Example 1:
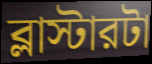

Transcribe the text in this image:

ব্লাস্টারটা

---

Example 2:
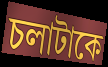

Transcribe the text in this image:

চলাটাকে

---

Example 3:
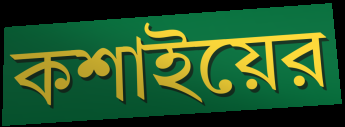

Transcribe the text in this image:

কশাইয়ের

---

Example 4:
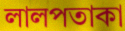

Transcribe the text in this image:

লালপতাকা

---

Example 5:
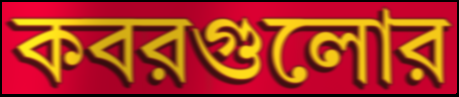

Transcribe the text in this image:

কবরগুলোর